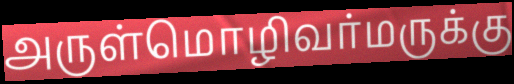
அருள்மொழிவர்மருக்கு